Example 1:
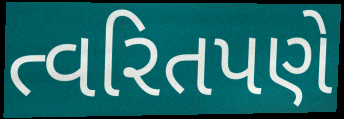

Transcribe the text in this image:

ત્વરિતપણે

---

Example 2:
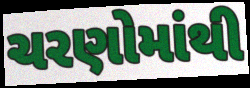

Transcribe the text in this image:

ચરણોમાંથી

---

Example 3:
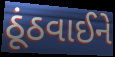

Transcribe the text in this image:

ઠૂંઠવાઈને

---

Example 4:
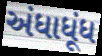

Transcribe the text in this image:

અંધાધૂંધ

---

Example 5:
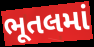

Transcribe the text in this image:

ભૂતલમાં